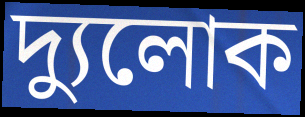
দ্যুলোক